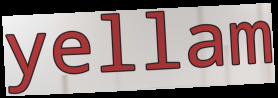
yellam